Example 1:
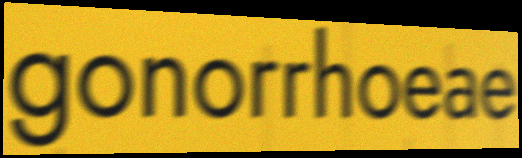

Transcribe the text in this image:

gonorrhoeae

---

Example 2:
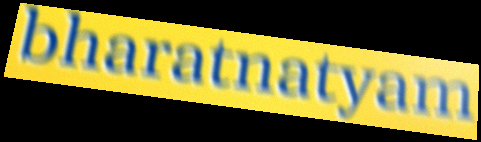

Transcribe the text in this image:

bharatnatyam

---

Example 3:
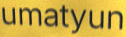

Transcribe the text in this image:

umatyun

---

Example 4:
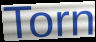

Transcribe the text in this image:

Torn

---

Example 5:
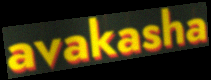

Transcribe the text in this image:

avakasha